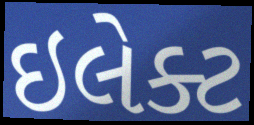
ઇલેક્ટ